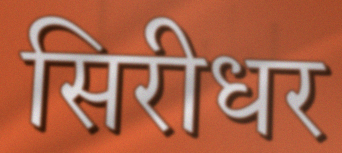
सिरीधर